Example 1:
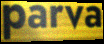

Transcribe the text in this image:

parva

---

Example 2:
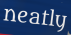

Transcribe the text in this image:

neatly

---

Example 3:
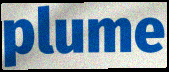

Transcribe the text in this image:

plume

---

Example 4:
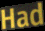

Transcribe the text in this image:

Had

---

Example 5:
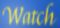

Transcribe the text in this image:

Watch